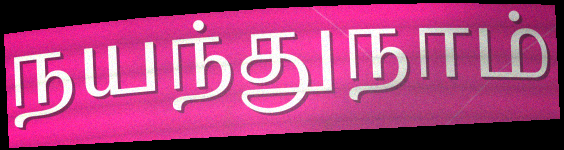
நயந்துநாம்